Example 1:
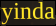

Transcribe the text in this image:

yinda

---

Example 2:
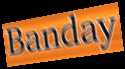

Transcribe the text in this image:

Banday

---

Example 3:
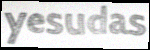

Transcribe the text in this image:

yesudas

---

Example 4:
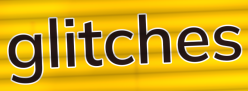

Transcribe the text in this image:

glitches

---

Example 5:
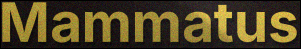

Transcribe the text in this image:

Mammatus